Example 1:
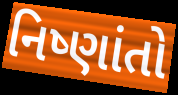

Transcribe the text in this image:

નિષ્ણાંતો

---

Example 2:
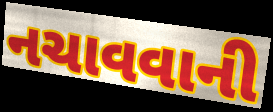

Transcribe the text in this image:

નચાવવાની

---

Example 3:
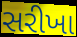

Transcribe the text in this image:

સરીખા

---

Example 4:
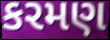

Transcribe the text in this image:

કરમણ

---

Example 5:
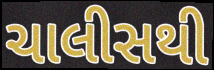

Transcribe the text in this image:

ચાલીસથી